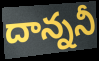
దాన్ననీ